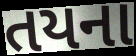
તયના